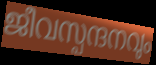
ജീവസ്പന്ദനവും